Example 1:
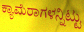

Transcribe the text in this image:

ಕ್ಯಾಮೆರಾಗಳನ್ನಿಟ್ಟು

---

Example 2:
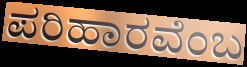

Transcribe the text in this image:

ಪರಿಹಾರವೆಂಬ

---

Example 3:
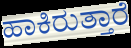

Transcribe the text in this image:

ಹಾಕಿರುತ್ತಾರೆ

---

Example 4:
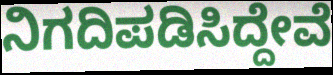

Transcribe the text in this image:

ನಿಗದಿಪಡಿಸಿದ್ದೇವೆ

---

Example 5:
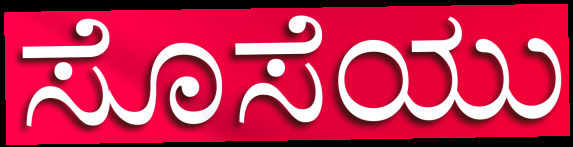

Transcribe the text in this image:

ಸೊಸೆಯು